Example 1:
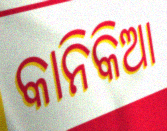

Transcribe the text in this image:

କାନିକିଆ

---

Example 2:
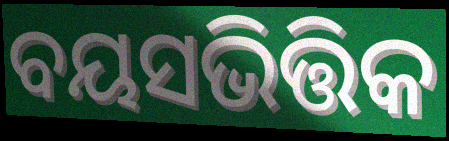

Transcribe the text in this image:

ବୟସଭିତ୍ତିକ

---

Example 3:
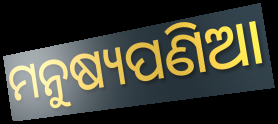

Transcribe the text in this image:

ମନୁଷ୍ୟପଣିଆ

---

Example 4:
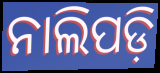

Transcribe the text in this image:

ନାଲିପଡ଼ି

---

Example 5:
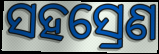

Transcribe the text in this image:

ସହସ୍ରେଣ